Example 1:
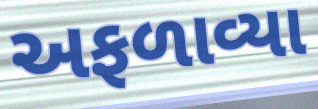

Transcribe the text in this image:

અફળાવ્યા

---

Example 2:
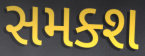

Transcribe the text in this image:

સમક્શ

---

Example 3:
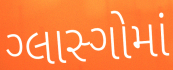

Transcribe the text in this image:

ગ્લાસ્ગોમાં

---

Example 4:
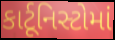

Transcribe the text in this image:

કાર્ટૂનિસ્ટોમાં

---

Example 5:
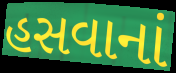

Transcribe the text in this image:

હસવાનાં